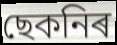
ছেকনিৰ